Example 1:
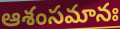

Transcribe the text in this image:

ఆశంసమానః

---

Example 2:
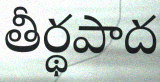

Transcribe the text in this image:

తీర్థపాద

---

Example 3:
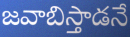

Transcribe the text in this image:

జవాబిస్తాడనే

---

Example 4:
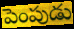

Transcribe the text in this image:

పెంపుడు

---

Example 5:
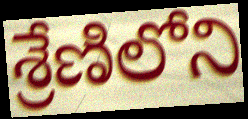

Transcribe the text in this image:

శ్రేణిలోని